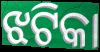
ଝଟିକା